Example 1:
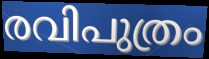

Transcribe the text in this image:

രവിപുത്രം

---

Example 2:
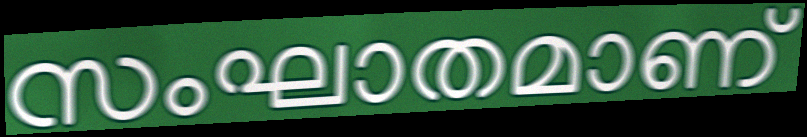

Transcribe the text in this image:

സംഘാതമാണ്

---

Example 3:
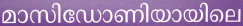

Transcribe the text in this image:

മാസിഡോണിയായിലെ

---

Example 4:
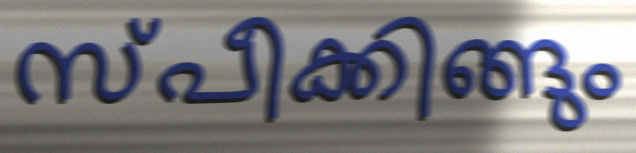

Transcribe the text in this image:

സ്പീക്കിങ്ങും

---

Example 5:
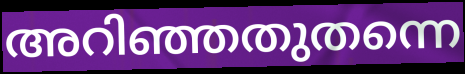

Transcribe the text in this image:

അറിഞ്ഞതുതന്നെ